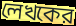
লেখকের